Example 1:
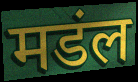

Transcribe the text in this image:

मडंल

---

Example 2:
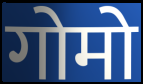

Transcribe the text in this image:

गोमो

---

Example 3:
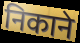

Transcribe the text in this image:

निकाने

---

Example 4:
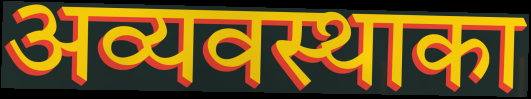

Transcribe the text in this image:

अव्यवस्थाका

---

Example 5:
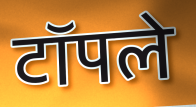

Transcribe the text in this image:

टॉपले